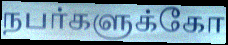
நபர்களுக்கோ